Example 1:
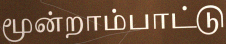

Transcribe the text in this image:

மூன்றாம்பாட்டு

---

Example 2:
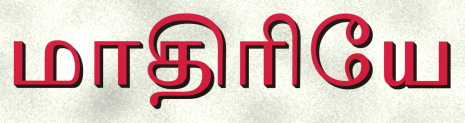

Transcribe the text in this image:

மாதிரியே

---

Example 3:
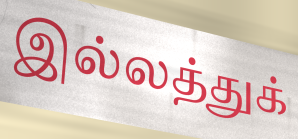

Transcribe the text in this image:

இல்லத்துக்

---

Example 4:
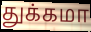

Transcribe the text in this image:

துக்கமா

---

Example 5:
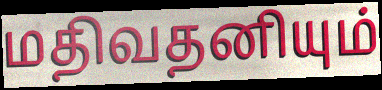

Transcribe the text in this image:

மதிவதனியும்